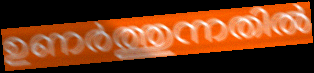
ഉണർത്തുന്നതിൽ